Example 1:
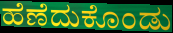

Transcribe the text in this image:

ಹೆಣೆದುಕೊಂಡು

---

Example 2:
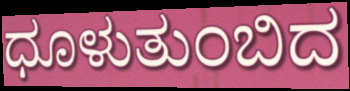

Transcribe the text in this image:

ಧೂಳುತುಂಬಿದ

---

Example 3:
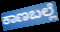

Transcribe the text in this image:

ಕಾಣಬಲ್ಲೆ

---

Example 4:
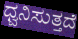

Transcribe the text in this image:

ಧ್ವನಿಸುತ್ತದೆ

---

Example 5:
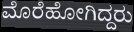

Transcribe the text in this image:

ಮೊರೆಹೋಗಿದ್ದರು